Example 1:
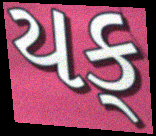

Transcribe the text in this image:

યક્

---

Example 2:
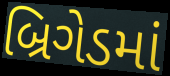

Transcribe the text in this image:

બ્રિગેડમાં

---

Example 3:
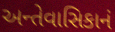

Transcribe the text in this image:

અન્તેવાસિકાનં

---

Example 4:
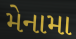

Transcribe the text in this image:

મેનામા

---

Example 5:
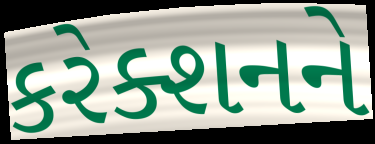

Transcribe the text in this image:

કરેક્શનને